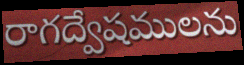
రాగద్వేషములను